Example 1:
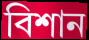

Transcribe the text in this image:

বিশান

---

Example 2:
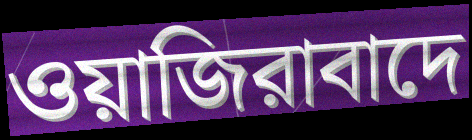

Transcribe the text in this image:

ওয়াজিরাবাদে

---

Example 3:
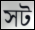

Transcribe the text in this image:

সট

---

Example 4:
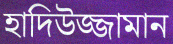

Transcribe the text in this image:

হাদিউজ্জামান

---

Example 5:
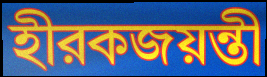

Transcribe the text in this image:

হীরকজয়ন্তী